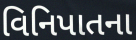
વિનિપાતના